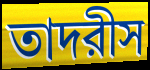
তাদরীস